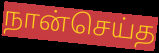
நான்செய்த